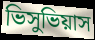
ভিসুভিয়াস